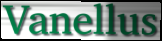
Vanellus